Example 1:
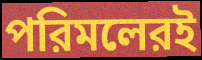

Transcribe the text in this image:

পরিমলেরই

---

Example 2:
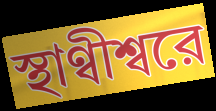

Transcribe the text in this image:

স্থাণ্বীশ্বরে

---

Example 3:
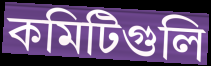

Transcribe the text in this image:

কমিটিগুলি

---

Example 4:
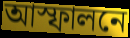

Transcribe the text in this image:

আস্ফালনে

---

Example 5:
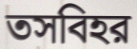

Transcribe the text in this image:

তসবিহর